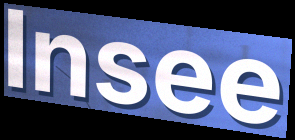
Insee